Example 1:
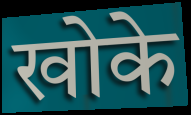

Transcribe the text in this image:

खोके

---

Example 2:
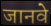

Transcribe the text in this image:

जानवे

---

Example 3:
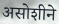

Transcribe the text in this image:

असोशीने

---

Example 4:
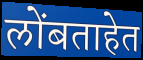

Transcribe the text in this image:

लोंबताहेत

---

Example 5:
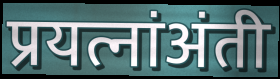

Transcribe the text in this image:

प्रयत्नांअंती